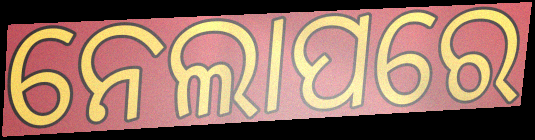
ନେଲାପରେ